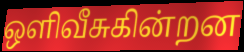
ஒளிவீசுகின்றன